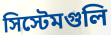
সিস্টেমগুলি